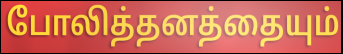
போலித்தனத்தையும்